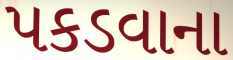
પકડવાના